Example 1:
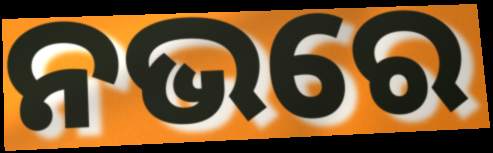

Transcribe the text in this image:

ନଭରେ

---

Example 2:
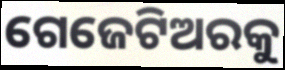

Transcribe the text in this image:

ଗେଜେଟିଅରକୁ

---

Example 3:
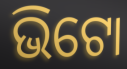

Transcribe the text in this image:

ଭିଟୋ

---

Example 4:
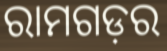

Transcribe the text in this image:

ରାମଗଡ଼ର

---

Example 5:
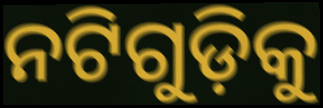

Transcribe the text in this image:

ନଟିଗୁଡ଼ିକୁ